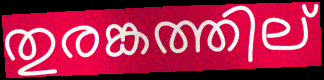
തുരങ്കത്തില്